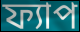
ফ্যাপ